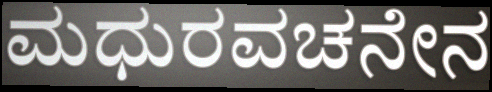
ಮಧುರವಚನೇನ